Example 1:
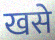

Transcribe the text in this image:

खसे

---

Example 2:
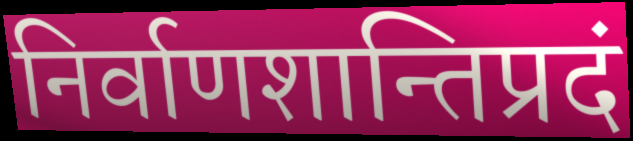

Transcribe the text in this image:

निर्वाणशान्तिप्रदं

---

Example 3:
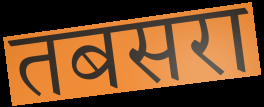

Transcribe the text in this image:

तबसरा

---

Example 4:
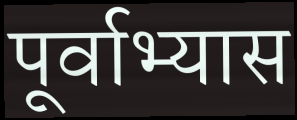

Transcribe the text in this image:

पूर्वाभ्यास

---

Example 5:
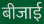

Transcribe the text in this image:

बीजाई